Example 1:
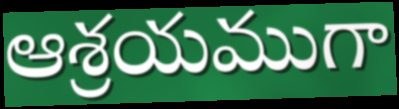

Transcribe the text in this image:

ఆశ్రయముగా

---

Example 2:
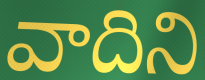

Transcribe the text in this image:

వాదిని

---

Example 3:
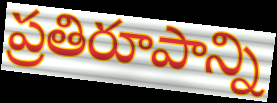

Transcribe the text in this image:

ప్రతిరూపాన్ని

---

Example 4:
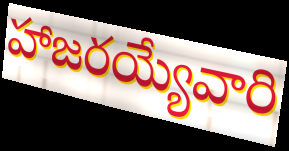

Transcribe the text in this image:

హాజరయ్యేవారి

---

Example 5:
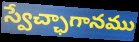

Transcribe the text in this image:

స్వేచ్ఛాగానము